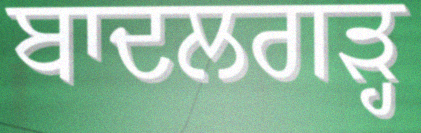
ਬਾਦਲਗੜ੍ਹ